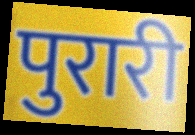
पुरारी